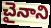
చైనాని